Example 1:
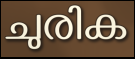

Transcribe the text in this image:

ചുരിക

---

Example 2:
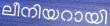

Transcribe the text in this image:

ലീനിയറായി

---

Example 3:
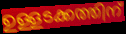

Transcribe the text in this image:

ഉള്ളടക്കത്തിന്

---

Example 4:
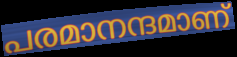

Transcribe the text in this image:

പരമാനന്ദമാണ്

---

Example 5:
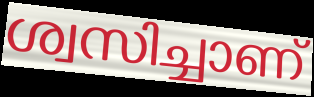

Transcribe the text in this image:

ശ്വസിച്ചാണ്